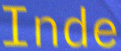
Inde